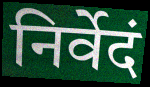
निर्वेदं